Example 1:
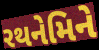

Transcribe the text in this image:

રથનેમિને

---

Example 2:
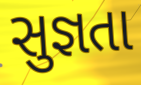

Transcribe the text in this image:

સુજ્ઞતા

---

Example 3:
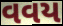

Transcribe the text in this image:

વવય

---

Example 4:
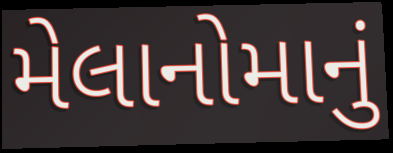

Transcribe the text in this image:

મેલાનોમાનું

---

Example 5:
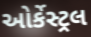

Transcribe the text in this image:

ઓર્કેસ્ટ્રલ